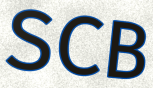
SCB